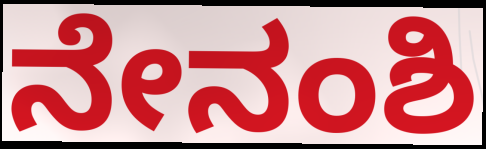
ನೇನಂಶಿ